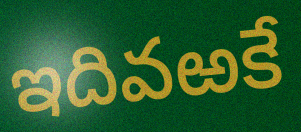
ఇదివఱకే